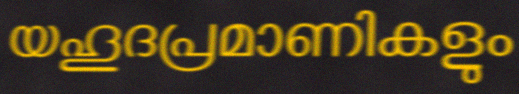
യഹൂദപ്രമാണികളും